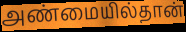
அண்மையில்தான்